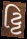
ટ્ટિ